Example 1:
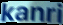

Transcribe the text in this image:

kanri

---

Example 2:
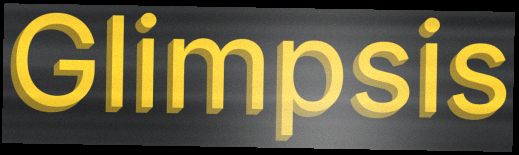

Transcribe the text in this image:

Glimpsis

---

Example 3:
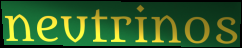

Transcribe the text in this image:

neutrinos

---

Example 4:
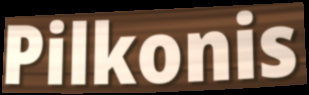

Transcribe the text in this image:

Pilkonis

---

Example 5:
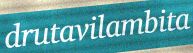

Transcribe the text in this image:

drutavilambita